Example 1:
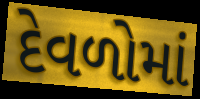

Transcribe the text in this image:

દેવળોમાં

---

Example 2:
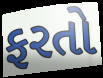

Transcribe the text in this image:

ફરતો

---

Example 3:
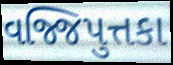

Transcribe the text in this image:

વજ્જિપુત્તકા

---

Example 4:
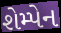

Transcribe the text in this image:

શેમ્પેન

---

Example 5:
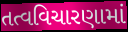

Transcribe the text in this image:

તત્વવિચારણામાં